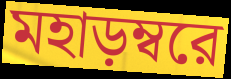
মহাড়ম্বরে